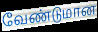
வேண்டுமான